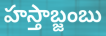
హస్తాబ్జంబు